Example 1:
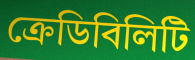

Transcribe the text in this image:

ক্রেডিবিলিটি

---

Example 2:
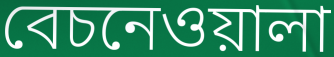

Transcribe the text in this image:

বেচনেওয়ালা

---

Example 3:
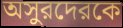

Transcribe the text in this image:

অসুরদেরকে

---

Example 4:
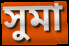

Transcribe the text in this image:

সুমা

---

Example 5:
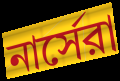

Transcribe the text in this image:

নার্সেরা